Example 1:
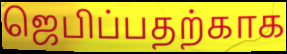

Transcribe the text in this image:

ஜெபிப்பதற்காக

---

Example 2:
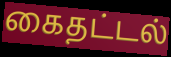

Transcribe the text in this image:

கைதட்டல்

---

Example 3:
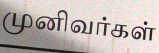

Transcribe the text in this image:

முனிவர்கள்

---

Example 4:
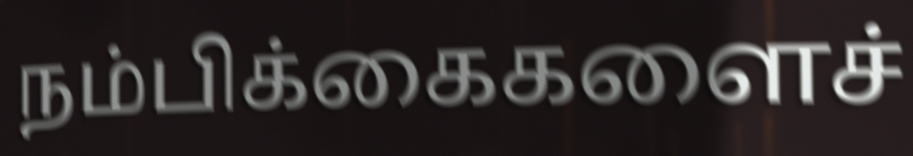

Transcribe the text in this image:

நம்பிக்கைகளைச்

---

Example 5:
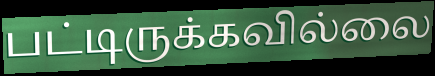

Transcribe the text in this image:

பட்டிருக்கவில்லை